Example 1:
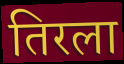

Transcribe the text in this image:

तिरला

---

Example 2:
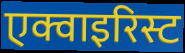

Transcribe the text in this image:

एक्वाइरिस्ट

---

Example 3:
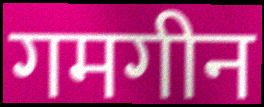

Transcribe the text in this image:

गमगीन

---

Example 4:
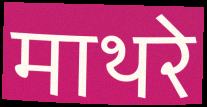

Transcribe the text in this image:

माथरे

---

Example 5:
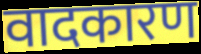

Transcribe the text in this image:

वादकारण